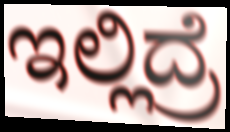
ಇಲ್ಲಿದ್ರೆ